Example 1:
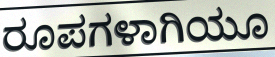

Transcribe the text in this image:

ರೂಪಗಳಾಗಿಯೂ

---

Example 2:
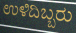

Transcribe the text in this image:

ಉಳಿದಿಬ್ಬರು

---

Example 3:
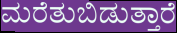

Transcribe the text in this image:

ಮರೆತುಬಿಡುತ್ತಾರೆ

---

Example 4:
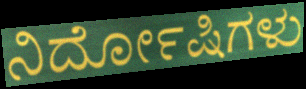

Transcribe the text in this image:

ನಿರ್ದೋಷಿಗಳು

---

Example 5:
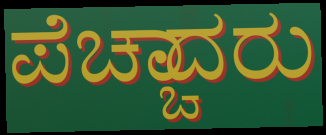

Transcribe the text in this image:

ಪೆಚ್ಚಾದರು